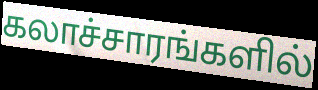
கலாச்சாரங்களில்